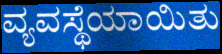
ವ್ಯವಸ್ಥೆಯಾಯಿತು